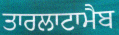
ਤਾਰਲਾਟਾਮੈਬ